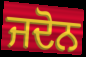
ਜਦੋਨ